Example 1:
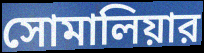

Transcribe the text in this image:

সোমালিয়ার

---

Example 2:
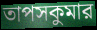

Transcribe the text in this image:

তাপসকুমার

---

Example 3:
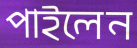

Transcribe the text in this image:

পাইলেন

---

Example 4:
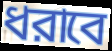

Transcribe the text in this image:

ধরাবে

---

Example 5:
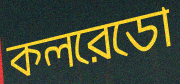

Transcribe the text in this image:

কলরেডো